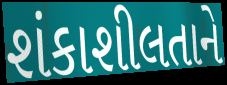
શંકાશીલતાને